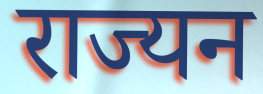
राज्यन